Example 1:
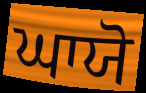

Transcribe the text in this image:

ਘਾਯੋ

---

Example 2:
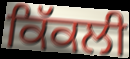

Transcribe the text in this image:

ਕਿੱਕਲੀ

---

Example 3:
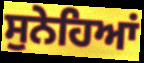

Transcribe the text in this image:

ਸੁਨੇਹਿਆਂ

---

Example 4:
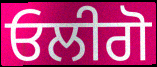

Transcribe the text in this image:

ਓਲੀਗੋ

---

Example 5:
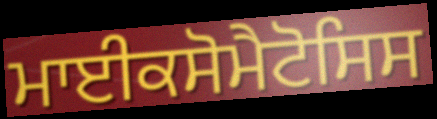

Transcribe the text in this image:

ਮਾਈਕਸੋਮੈਟੋਸਿਸ